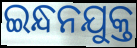
ଇନ୍ଧନଯୁକ୍ତ